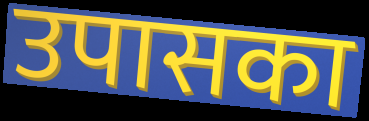
उपासका